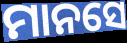
ମାନସେ